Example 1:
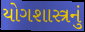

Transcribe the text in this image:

યોગશાસ્ત્રનું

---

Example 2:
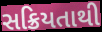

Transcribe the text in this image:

સક્રિયતાથી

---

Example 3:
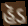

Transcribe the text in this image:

હૅડ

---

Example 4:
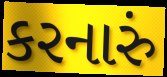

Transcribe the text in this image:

કરનારું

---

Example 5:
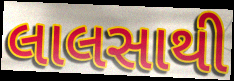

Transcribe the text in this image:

લાલસાથી